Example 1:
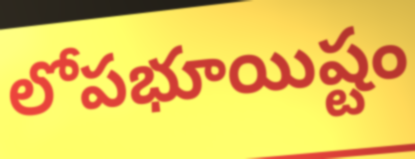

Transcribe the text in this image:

లోపభూయిష్టం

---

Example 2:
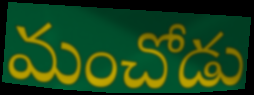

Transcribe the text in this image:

మంచోడు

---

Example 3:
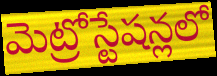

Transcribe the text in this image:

మెట్రోస్టేషన్లలో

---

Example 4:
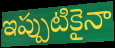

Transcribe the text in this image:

ఇప్పుటికైనా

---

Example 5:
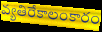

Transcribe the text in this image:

వ్యతిరేకాలంకారం